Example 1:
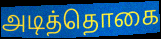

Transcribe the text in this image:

அடித்தொகை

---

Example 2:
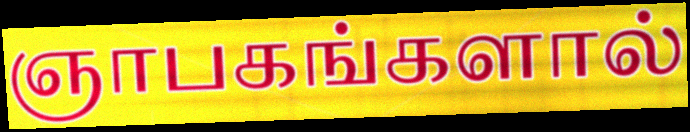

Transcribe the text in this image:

ஞாபகங்களால்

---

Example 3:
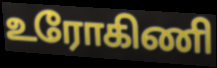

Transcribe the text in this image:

உரோகிணி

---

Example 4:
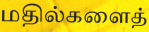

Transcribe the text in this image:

மதில்களைத்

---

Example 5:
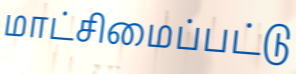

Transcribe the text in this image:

மாட்சிமைப்பட்டு